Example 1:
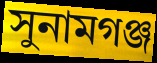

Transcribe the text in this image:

সুনামগঞ্জ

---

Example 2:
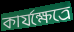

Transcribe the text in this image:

কার্যক্ষেত্রে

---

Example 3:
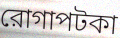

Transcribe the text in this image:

রোগাপটকা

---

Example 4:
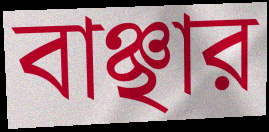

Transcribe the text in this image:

বাঞ্ছার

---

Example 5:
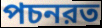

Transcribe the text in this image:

পচনরত